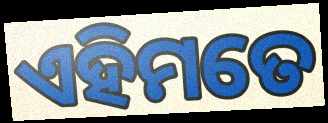
ଏହିମତେ